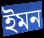
ইমন